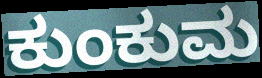
ಕುಂಕುಮ